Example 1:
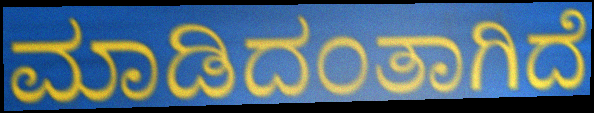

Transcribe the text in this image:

ಮಾಡಿದಂತಾಗಿದೆ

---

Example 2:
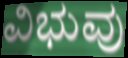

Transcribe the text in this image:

ವಿಭುವು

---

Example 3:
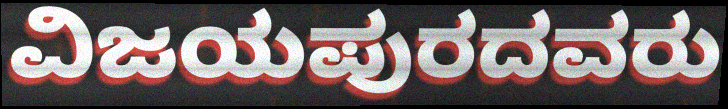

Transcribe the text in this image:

ವಿಜಯಪುರದವರು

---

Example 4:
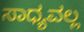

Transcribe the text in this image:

ಸಾಧ್ಯವಲ್ಲ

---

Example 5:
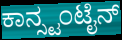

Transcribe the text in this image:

ಕಾನ್ಸ್ಟಂಟೈನ್